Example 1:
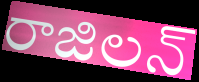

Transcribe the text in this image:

రాజిలన్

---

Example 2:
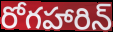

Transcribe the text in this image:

రోగహారిన్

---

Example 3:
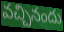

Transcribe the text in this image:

వచ్చినందు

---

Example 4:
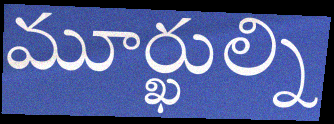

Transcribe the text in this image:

మూర్ఖుల్ని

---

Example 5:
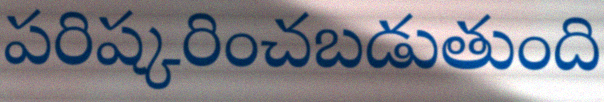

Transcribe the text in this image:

పరిష్కరించబడుతుంది